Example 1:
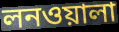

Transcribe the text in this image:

লনওয়ালা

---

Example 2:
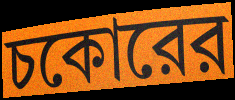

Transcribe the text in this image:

চকোরের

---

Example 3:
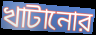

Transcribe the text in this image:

খাটানোর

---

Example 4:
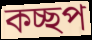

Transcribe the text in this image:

কচ্ছপ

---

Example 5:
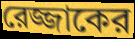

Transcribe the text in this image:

রেজ্জাকের